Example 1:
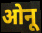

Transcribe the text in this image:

ओनू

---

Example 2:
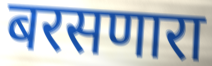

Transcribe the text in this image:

बरसणारा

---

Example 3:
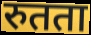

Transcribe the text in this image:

रुतता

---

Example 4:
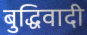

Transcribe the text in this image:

बुद्धिवादी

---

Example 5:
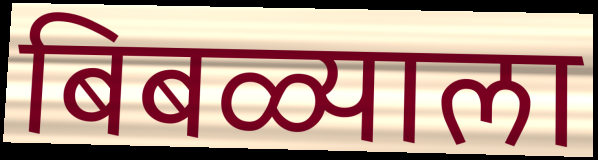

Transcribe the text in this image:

बिबळ्याला